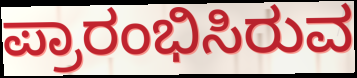
ಪ್ರಾರಂಭಿಸಿರುವ